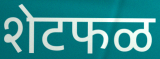
शेटफळ